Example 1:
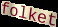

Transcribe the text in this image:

folket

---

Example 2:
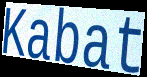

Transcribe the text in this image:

Kabat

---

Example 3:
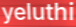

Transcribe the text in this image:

yeluthi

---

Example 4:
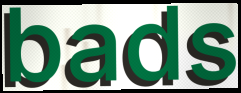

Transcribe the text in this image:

bads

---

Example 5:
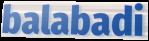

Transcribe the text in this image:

balabadi